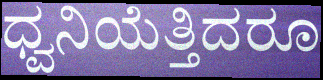
ಧ್ವನಿಯೆತ್ತಿದರೂ